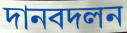
দানবদলন